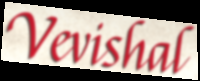
Vevishal